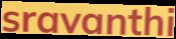
sravanthi